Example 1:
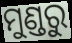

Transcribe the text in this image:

ମୁଣ୍ଡରୁ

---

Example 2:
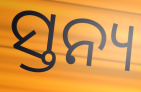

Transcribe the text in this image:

ସ୍ତନ୍ୟ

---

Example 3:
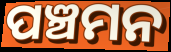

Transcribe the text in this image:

ପଞ୍ଚମନ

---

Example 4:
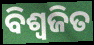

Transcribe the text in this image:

ବିଶ୍ଵଜିତ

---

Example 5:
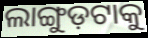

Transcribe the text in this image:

ଲାଙ୍ଗୁଡ଼ଟାକୁ